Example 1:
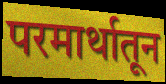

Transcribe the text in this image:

परमार्थातून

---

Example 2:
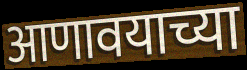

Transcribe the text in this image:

आणावयाच्या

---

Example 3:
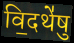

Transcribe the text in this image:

वि॒दथे॑षु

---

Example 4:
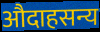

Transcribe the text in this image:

औदाहसन्य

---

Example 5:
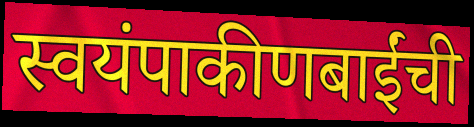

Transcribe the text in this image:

स्वयंपाकीणबाईंची